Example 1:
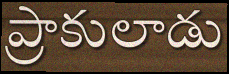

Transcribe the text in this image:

ప్రాకులాడు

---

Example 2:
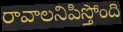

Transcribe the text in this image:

రావాలనిపిస్తోంది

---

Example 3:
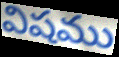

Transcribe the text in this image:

విషము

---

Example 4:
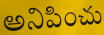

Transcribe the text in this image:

అనిపించు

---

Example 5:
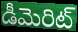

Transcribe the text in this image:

డీమెరిట్